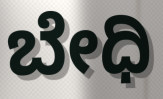
ಬೇಧಿ